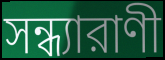
সন্ধ্যারাণী